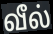
வீல்